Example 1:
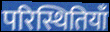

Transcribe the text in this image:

परिस्थितियाँ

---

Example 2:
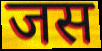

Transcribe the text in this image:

जस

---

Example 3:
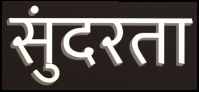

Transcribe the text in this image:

सुंदरता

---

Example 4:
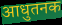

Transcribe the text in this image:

आधुतनक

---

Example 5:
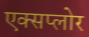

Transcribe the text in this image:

एक्सप्लोर